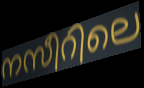
നസീറിലെ